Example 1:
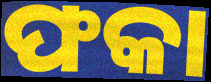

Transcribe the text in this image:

ଫକା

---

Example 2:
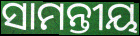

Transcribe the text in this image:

ସାମନ୍ତୀୟ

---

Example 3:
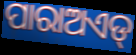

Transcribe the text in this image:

ପାରାଅଏଡ୍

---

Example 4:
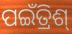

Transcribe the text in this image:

ପଇଁତ୍ରିଶ୍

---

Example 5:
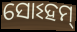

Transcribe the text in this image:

ସୋଽହମ୍